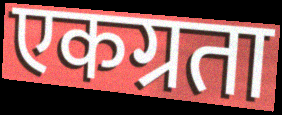
एकग्रता